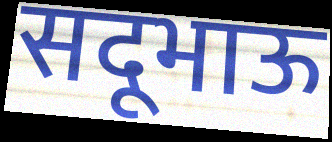
सदूभाऊ